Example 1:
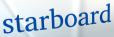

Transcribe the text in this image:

starboard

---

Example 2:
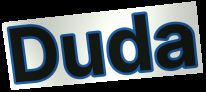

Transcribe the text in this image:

Duda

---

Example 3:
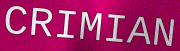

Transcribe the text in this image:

CRIMIAN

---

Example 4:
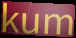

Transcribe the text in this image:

kum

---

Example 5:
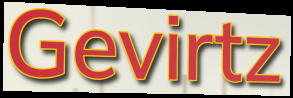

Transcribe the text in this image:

Gevirtz